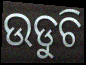
ଉଡୁଚି